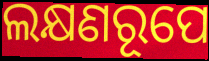
ଲକ୍ଷଣରୂପେ